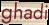
ghadi